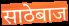
साठेबाज